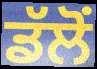
ਡੱਲੋਂ